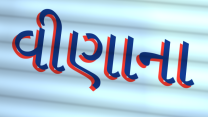
વીણાના